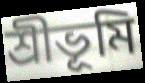
শ্রীভূমি